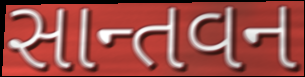
સાન્તવન